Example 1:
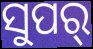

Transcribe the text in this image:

ସୁପର୍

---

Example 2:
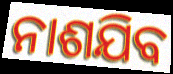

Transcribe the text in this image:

ନାଶଯିବ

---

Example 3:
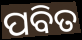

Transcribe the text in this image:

ପବିତ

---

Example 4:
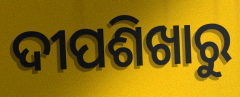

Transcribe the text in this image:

ଦୀପଶିଖାରୁ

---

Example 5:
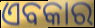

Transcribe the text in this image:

ଏବକାର